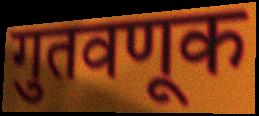
गुतवणूक